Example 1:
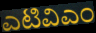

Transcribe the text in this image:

ಎಟಿವಿಎಂ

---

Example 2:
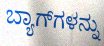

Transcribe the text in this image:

ಬ್ಯಾಗ್‌ಗಳನ್ನು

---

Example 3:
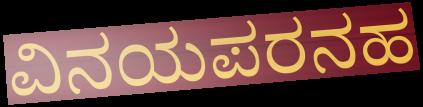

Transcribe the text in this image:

ವಿನಯಪರನಹ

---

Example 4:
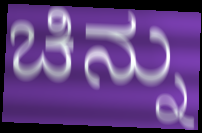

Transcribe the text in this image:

ಚಿನ್ನು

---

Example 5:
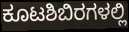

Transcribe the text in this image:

ಕೂಟಶಿಬಿರಗಳಲ್ಲಿ